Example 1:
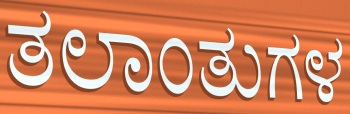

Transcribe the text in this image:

ತಲಾಂತುಗಳ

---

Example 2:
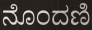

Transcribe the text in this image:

ನೊಂದಣಿ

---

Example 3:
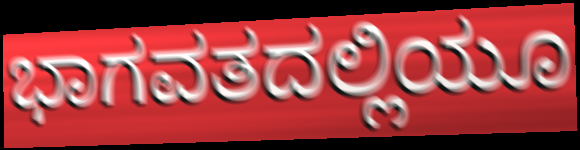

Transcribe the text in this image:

ಭಾಗವತದಲ್ಲಿಯೂ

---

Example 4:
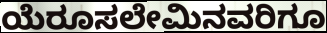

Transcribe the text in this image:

ಯೆರೂಸಲೇಮಿನವರಿಗೂ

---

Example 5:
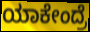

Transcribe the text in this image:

ಯಾಕೇಂದ್ರೆ